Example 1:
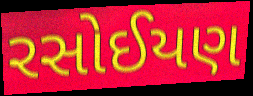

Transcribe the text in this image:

રસોઈયણ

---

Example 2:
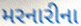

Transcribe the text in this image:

મરનારીના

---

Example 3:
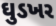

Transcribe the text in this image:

ઘુડખર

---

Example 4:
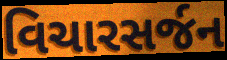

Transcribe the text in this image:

વિચારસર્જન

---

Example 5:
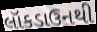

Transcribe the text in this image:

લૉકડાઉનથી